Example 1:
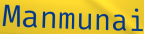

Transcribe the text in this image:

Manmunai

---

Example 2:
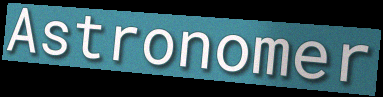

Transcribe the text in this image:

Astronomer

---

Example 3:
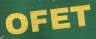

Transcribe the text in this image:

OFET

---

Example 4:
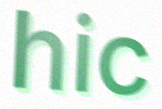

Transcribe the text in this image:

hic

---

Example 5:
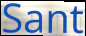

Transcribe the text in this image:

Sant